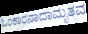
ಓಂಕಾರನಾದಾಮೃತವ